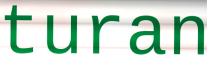
turan